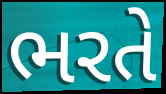
ભરતે